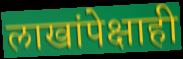
लाखांपेक्षाही